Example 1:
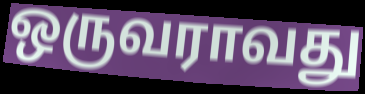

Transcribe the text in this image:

ஒருவராவது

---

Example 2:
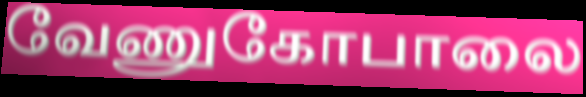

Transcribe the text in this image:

வேணுகோபாலை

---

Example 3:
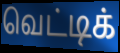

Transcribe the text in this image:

வெட்டிக்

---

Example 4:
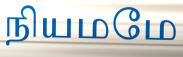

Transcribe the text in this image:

நியமமே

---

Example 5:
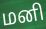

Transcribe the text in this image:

மனி